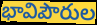
భావిపౌరుల